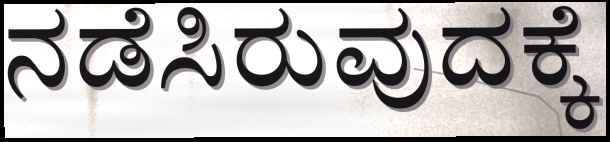
ನಡೆಸಿರುವುದಕ್ಕೆ